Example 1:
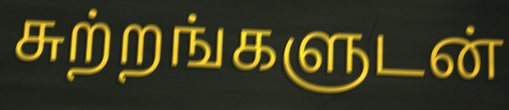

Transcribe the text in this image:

சுற்றங்களுடன்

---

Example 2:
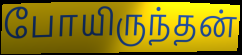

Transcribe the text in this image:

போயிருந்தன்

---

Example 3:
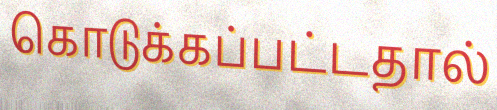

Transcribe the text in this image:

கொடுக்கப்பட்டதால்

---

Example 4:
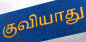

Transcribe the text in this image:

குவியாது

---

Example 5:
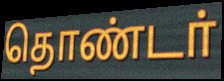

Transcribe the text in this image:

தொண்டர்